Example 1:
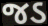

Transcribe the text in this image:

જડ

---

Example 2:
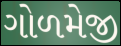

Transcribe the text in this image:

ગોળમેજી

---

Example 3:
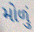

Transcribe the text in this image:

મોળું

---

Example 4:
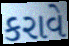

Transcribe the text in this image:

કરાવે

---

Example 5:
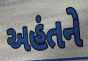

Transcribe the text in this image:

અહંતને